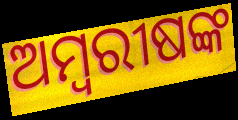
ଅମ୍ବରୀଷଙ୍କ